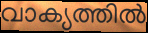
വാക്യത്തിൽ